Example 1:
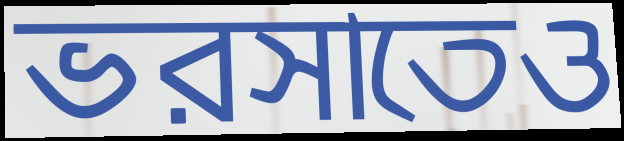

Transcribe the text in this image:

ভরসাতেও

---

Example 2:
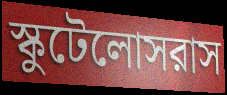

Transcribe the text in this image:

স্কুটেলোসরাস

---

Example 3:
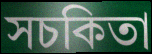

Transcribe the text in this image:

সচকিতা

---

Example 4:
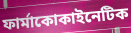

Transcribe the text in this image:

ফার্মাকোকাইনেটিক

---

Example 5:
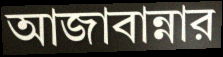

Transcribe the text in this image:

আজাবান্নার